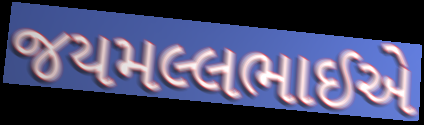
જયમલ્લભાઈએ